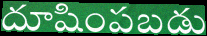
దూషింపబడు